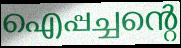
ഐപ്പച്ചന്റെ